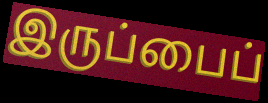
இருப்பைப்